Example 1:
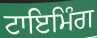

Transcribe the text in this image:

ਟਾਇਮਿੰਗ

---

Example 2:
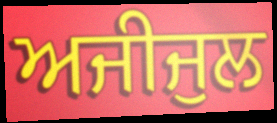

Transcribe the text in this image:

ਅਜੀਜੁਲ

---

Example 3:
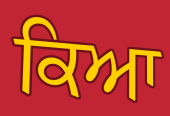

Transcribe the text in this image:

ਕਿਆ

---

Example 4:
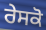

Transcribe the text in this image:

ਰੇਸਕੋ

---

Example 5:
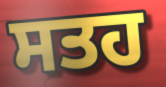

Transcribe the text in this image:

ਸਤਹ